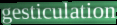
gesticulation